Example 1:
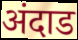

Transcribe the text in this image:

अंदाड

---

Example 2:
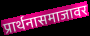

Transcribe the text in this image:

प्रार्थनासमाजावर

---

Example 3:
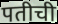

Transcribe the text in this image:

पतीची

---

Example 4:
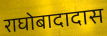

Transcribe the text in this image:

राघोबादादास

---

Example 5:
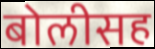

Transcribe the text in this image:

बोलीसह